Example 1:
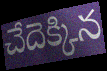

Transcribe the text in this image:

చేదెక్కిన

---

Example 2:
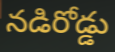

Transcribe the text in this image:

నడిరోడ్డు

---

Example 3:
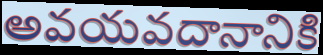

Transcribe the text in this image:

అవయవదానానికి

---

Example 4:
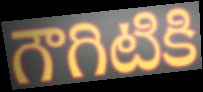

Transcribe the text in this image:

గౌగిటికి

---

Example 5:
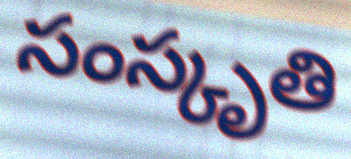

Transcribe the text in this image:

సంస్కృతి